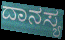
ದಾನಸ್ಯ